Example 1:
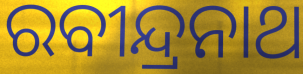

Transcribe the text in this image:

ରବୀନ୍ଦ୍ରନାଥ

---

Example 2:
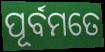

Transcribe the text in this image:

ପୂର୍ବମତେ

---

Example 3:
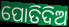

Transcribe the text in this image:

ପୋତିଦିଅ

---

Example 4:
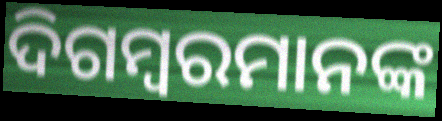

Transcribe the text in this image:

ଦିଗମ୍ବରମାନଙ୍କ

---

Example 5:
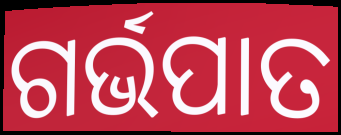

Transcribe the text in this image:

ଗର୍ଭପାତ